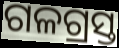
ଗଳଗ୍ରସ୍ତ